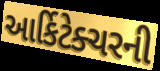
આર્કિટેક્ચરની